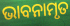
ଭାବନାମୃତ